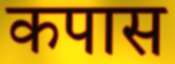
कपास